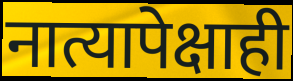
नात्यापेक्षाही